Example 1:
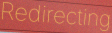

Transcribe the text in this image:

Redirecting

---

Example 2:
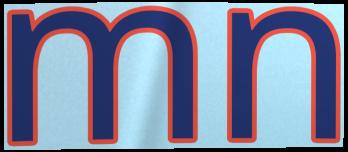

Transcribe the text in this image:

mn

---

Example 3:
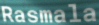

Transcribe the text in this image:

Rasmala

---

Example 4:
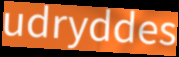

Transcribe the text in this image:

udryddes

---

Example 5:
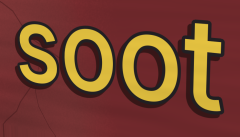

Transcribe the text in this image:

soot